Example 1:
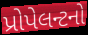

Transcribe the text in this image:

પ્રોપેલન્ટનો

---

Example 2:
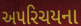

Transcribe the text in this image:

અપરિચયના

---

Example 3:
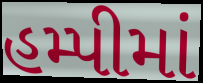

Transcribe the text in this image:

હમ્પીમાં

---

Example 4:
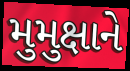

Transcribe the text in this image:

મુમુક્ષાને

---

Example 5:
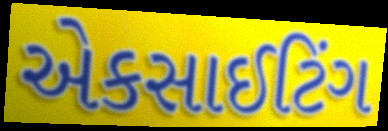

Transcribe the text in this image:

એકસાઈટિંગ